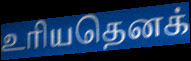
உரியதெனக்